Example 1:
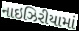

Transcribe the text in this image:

નાઇઝિરીયામાં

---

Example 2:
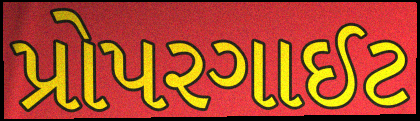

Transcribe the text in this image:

પ્રોપરગાઈટ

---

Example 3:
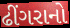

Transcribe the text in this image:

ઢીંગરાનો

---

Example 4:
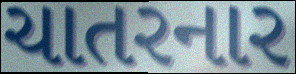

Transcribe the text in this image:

ચાતરનાર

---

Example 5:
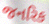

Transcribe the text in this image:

જનરિક